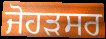
ਜੋਹੜਸਰ